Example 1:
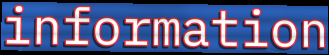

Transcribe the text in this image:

information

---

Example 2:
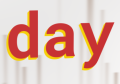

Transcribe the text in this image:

day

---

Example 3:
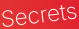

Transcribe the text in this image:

Secrets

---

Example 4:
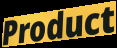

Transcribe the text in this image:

Product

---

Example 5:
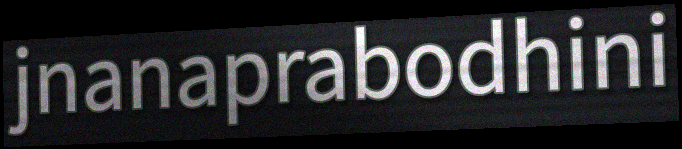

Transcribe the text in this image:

jnanaprabodhini